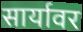
सार्यावर